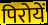
पिरोयें